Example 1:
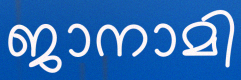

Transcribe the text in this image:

ജാനാമി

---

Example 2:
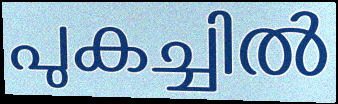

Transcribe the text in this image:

പുകച്ചിൽ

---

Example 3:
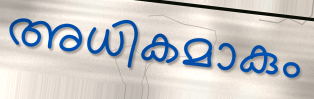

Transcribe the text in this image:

അധികമാകും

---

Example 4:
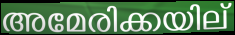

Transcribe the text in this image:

അമേരിക്കയില്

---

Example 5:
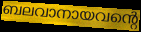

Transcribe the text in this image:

ബലവാനായവന്റെ